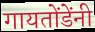
गायतोंडेंनी